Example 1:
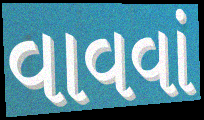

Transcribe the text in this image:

વાવવાં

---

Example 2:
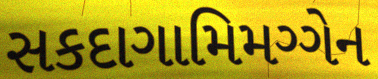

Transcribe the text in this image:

સકદાગામિમગ્ગેન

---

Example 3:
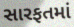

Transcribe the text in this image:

સારફતમાં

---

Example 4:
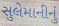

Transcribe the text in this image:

સુલેમાનીનું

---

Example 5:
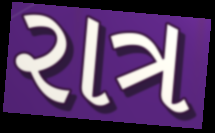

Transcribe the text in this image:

રાત્ર